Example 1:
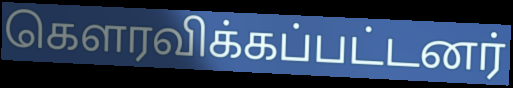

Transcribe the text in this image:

கௌரவிக்கப்பட்டனர்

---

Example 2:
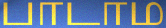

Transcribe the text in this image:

பாடாம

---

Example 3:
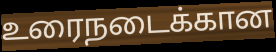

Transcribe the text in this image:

உரைநடைக்கான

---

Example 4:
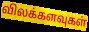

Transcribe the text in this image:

விலக்களவுகள்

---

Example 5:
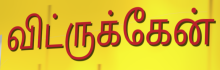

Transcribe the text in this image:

விட்ருக்கேன்